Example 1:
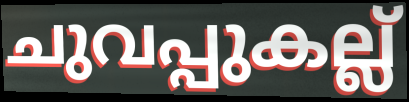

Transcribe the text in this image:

ചുവപ്പുകല്ല്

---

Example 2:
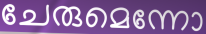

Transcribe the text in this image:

ചേരുമെന്നോ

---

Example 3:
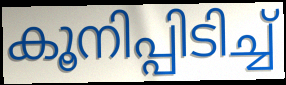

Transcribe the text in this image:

കൂനിപ്പിടിച്ച്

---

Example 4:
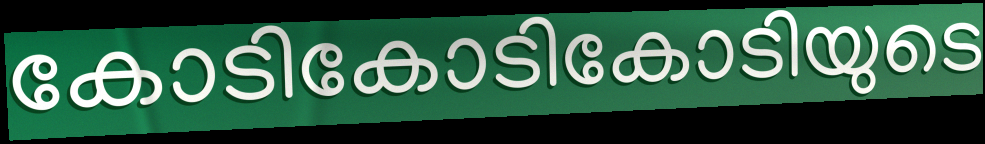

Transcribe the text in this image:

കോടികോടികോടിയുടെ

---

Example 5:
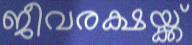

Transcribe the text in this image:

ജീവരക്ഷയ്ക്ക്